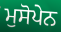
ਮੁਸੋਪੇਨ